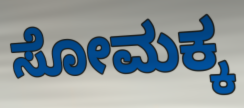
ಸೋಮಕ್ಕ